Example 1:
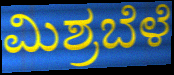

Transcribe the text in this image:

ಮಿಶ್ರಬೆಳೆ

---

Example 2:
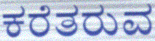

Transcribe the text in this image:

ಕರೆತರುವ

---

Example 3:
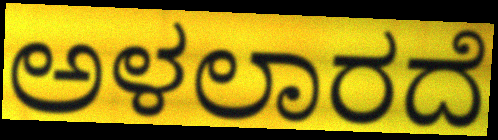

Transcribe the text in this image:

ಅಳಲಾರದೆ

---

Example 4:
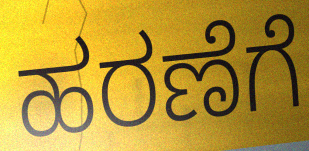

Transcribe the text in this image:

ಹರಣೆಗೆ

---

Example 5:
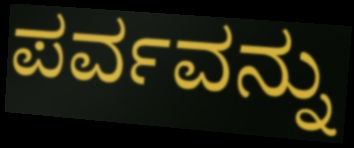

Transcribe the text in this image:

ಪರ್ವವನ್ನು